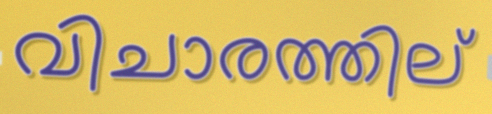
വിചാരത്തില്